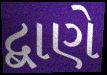
દ્બાણે